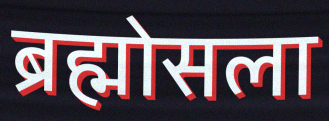
ब्रह्मोसला